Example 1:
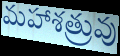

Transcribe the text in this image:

మహాశత్రువు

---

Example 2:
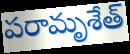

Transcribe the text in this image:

పరామృశేత్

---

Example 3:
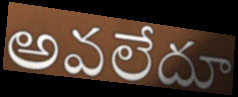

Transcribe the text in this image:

అవలేదూ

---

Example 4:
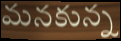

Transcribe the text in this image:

మనకున్న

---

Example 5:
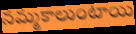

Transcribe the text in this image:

నమ్మకాలుంటాయి